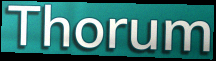
Thorum